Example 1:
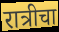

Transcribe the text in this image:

रात्रीचा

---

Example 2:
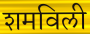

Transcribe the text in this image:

शमविली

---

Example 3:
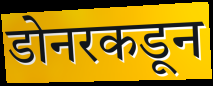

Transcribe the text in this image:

डोनरकडून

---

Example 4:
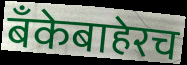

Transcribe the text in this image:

बँकेबाहेरच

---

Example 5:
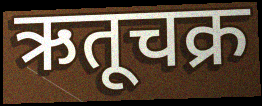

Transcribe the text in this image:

ऋतूचक्र